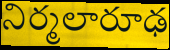
నిర్మలారూఢ